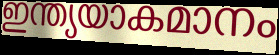
ഇന്ത്യയാകമാനം